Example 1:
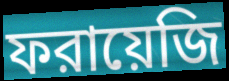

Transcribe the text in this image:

ফরায়েজি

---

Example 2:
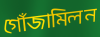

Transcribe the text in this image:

গোঁজামিলন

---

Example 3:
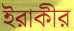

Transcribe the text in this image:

ইরাকীর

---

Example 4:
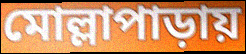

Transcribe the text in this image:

মোল্লাপাড়ায়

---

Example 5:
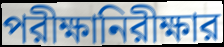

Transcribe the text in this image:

পরীক্ষানিরীক্ষার